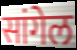
सांगेल